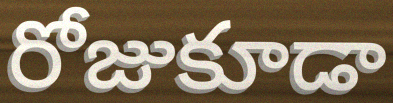
రోజుకూడా